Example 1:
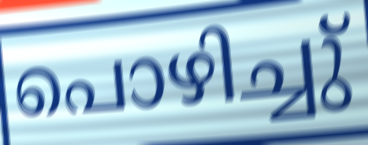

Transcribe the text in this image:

പൊഴിച്ചു്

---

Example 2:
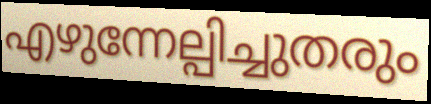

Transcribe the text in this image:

എഴുന്നേല്പിച്ചുതരും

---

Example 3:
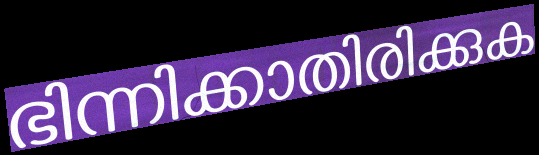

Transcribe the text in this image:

ഭിന്നിക്കാതിരിക്കുക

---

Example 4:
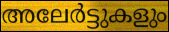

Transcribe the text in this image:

അലേർട്ടുകളും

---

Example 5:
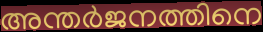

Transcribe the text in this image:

അന്തർജനത്തിനെ